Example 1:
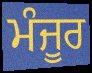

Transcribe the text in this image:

ਮੰਜੂਰ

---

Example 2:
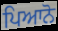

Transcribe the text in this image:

ਪਿਆਨੋ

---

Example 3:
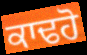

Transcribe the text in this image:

ਕਾਢਹੋ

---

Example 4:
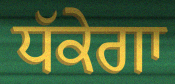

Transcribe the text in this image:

ਧੱਕੇਗਾ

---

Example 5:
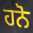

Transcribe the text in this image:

ਹਨੋ